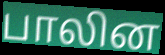
பாலின